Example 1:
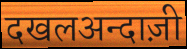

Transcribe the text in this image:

दखलअन्दाज़ी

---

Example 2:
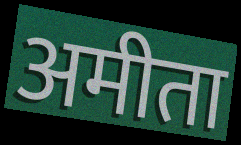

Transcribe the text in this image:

अमीता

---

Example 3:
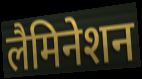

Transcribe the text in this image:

लैमिनेशन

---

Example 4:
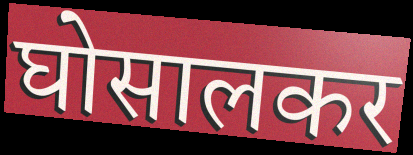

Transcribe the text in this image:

घोसालकर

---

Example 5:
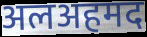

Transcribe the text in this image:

अलअहमद